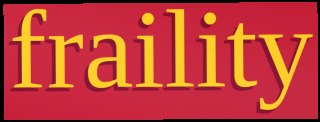
fraility